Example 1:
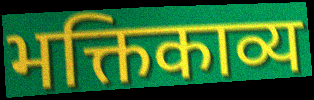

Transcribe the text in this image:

भक्तिकाव्य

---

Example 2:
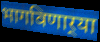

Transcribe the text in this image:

भागविणार्या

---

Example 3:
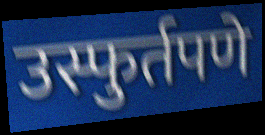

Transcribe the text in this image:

उस्फुर्तपणे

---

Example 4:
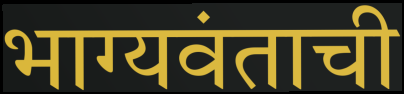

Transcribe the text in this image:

भाग्यवंताची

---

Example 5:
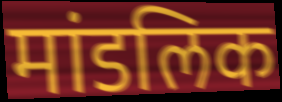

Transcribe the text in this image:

मांडलिक